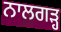
ਨਾਲਗੜ੍ਹ